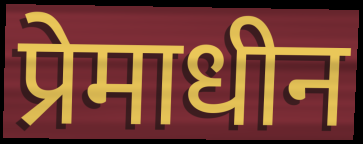
प्रेमाधीन